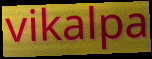
vikalpa